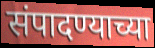
संपादण्याच्या